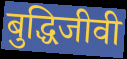
बुद्धिजीवी